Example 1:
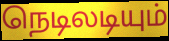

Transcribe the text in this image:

நெடிலடியும்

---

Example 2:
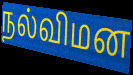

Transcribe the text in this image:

நல்விமன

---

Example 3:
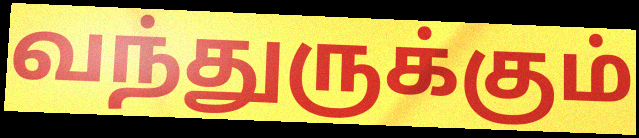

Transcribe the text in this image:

வந்துருக்கும்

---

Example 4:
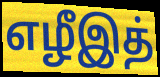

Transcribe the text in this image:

எழீஇத்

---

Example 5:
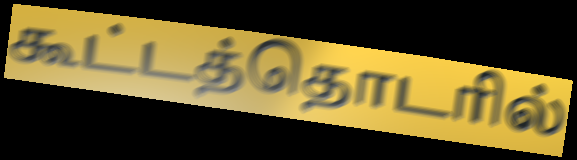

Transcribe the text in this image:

கூட்டத்தொடரில்